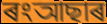
ৰংআছাৰ